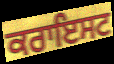
ਕਰਾਇਸਟ